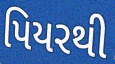
પિયરથી